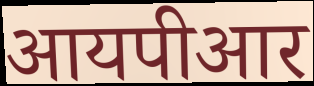
आयपीआर